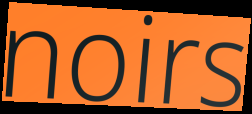
noirs